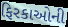
ફિરકાઓની